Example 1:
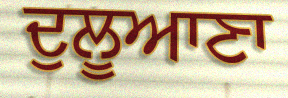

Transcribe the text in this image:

ਦੁਲੂਆਣਾ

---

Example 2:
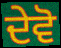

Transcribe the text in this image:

ਦੇਵੋ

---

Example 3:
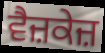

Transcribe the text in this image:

ਵੈਜ਼ਕੇਜ਼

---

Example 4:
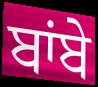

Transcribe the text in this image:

ਬਾਂਬੇ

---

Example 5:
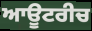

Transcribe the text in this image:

ਆਊਟਰੀਚ